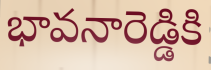
భావనారెడ్డికి